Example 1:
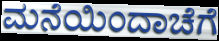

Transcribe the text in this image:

ಮನೆಯಿಂದಾಚೆಗೆ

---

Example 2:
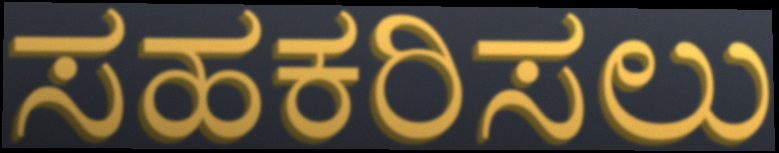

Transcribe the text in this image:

ಸಹಕರಿಸಲು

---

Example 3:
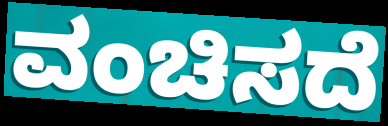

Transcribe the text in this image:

ವಂಚಿಸದೆ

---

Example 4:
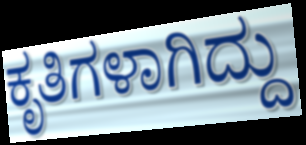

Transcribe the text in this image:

ಕೃತಿಗಳಾಗಿದ್ದು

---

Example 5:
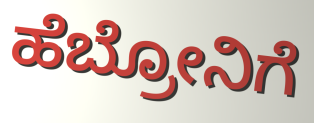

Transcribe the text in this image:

ಹೆಬ್ರೋನಿಗೆ